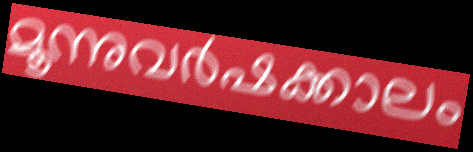
മൂന്നുവർഷക്കാലം